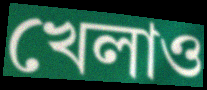
খেলাও